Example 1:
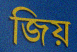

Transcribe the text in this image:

জিয়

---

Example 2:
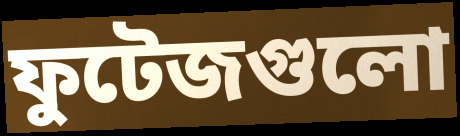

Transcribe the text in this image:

ফুটেজগুলো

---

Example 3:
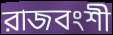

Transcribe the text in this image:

রাজবংশী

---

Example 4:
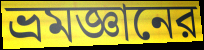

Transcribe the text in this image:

ভ্রমজ্ঞানের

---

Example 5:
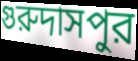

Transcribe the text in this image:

গুরুদাসপুর